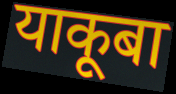
याकूबा